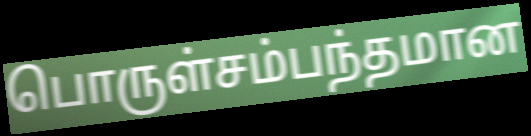
பொருள்சம்பந்தமான